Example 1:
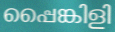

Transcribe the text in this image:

പ്പൈങ്കിളി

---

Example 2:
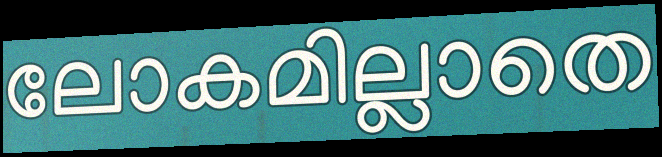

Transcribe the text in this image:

ലോകമില്ലാതെ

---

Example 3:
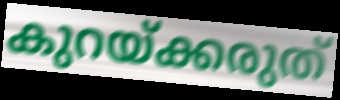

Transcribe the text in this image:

കുറയ്ക്കരുത്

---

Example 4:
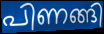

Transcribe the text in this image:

പിണങ്ങി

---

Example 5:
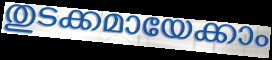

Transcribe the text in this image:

തുടക്കമായേക്കാം